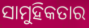
ସାମୁହିକତାର